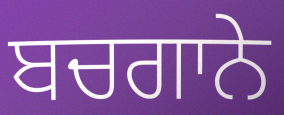
ਬਚਗਾਨੇ